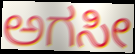
ಅಗಸೀ